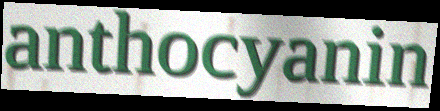
anthocyanin